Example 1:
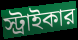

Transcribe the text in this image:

স্ট্রাইকার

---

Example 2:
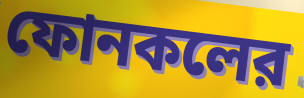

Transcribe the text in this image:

ফোনকলের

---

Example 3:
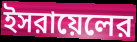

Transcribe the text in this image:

ইসরায়েলের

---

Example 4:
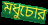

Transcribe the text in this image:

মধুচোর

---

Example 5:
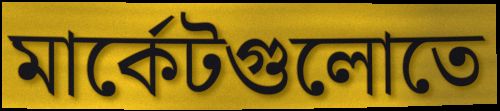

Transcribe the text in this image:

মার্কেটগুলোতে